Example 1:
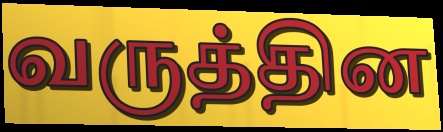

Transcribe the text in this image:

வருத்தின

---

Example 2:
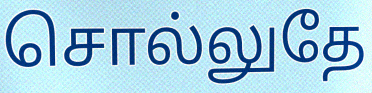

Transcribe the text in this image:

சொல்லுதே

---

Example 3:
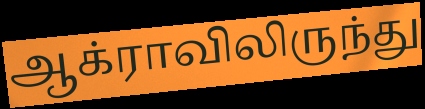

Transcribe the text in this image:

ஆக்ராவிலிருந்து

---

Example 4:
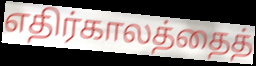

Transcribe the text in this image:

எதிர்காலத்தைத்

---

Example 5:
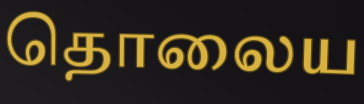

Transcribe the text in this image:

தொலைய